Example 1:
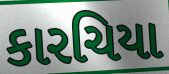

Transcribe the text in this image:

કારચિયા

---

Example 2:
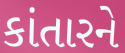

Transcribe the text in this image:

કાંતારને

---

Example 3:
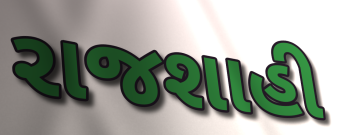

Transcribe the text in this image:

રાજશાહી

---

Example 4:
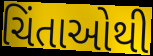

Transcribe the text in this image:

ચિંતાઓથી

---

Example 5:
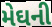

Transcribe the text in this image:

મેઘની